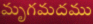
మృగమదము